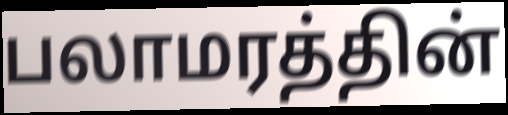
பலாமரத்தின்